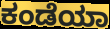
ಕಂಡೆಯಾ